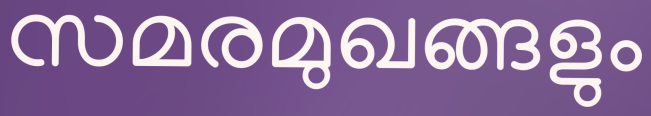
സമരമുഖങ്ങളും